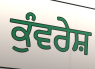
ਕੁੰਵਰੇਸ਼